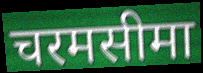
चरमसीमा